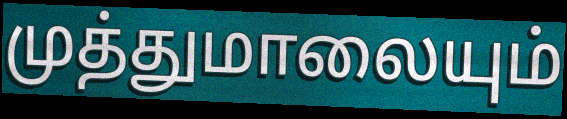
முத்துமாலையும்